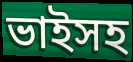
ভাইসহ